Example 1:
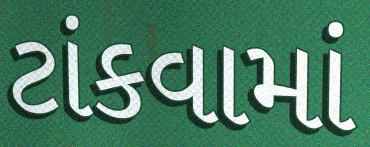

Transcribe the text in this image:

ટાંકવામાં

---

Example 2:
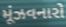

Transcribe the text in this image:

મૂંઝવનારો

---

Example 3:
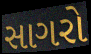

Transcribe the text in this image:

સાગરો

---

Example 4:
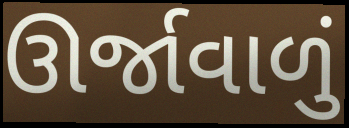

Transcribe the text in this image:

ઊર્જાવાળું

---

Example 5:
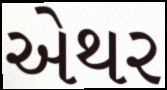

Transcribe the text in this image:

એથર